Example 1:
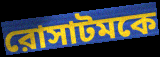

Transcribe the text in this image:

রোসাটমকে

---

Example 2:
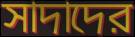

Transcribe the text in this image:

সাদাদের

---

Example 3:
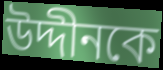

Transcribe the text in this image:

উদ্দীনকে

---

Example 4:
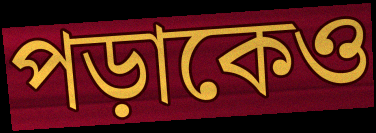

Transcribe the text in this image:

পড়াকেও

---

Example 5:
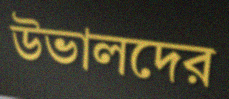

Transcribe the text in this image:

উভালদের